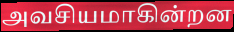
அவசியமாகின்றன